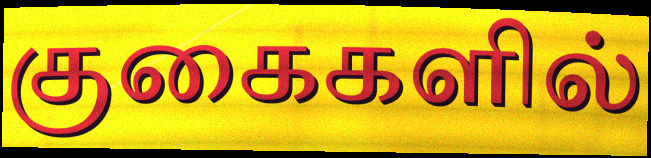
குகைகளில்